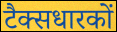
टैक्सधारकों